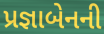
પ્રજ્ઞાબેનની